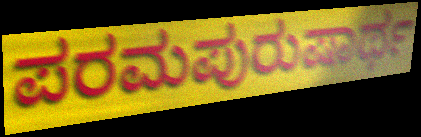
ಪರಮಪುರುಷಾರ್ಥ